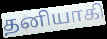
தனியாகி